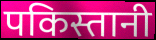
पकिस्तानी